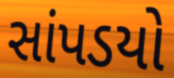
સાંપડયો